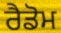
ਰੈਡੋਮ